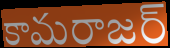
కామరాజర్